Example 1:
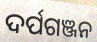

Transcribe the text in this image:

ଦର୍ପଗଞ୍ଜନ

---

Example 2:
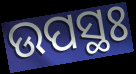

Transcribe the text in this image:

ଉପସ୍ଥଃ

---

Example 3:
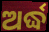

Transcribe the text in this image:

ଅର୍ଦ୍ଧ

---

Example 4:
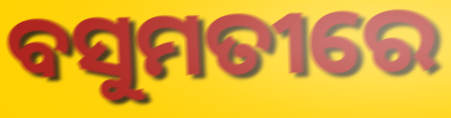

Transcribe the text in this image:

ବସୁମତୀରେ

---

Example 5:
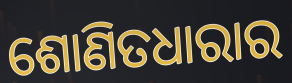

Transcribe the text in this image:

ଶୋଣିତଧାରାର